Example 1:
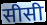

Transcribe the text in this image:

सीसी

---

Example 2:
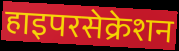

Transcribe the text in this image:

हाइपरसेक्रेशन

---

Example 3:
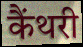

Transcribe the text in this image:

कैंथरी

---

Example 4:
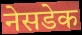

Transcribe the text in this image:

नेसडेक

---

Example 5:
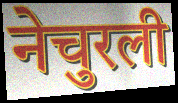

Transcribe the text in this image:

नेचुरली